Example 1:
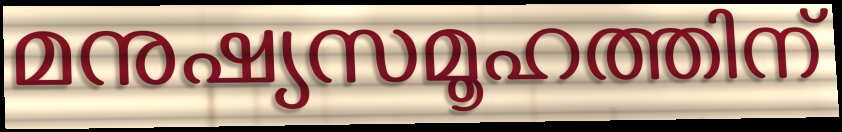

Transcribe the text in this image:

മനുഷ്യസമൂഹത്തിന്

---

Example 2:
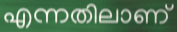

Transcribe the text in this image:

എന്നതിലാണ്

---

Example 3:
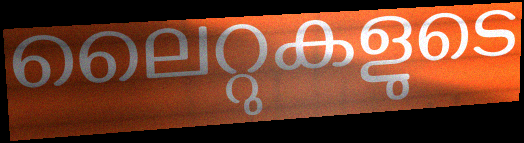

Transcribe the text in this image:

ലൈറ്റുകളുടെ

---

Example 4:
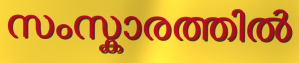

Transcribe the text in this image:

സംസ്കാരത്തിൽ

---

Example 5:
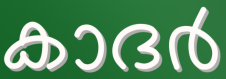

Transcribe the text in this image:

കാദർ